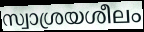
സ്വാശ്രയശീലം